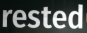
rested